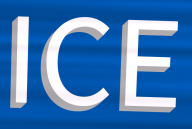
ICE